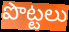
పొట్టలు